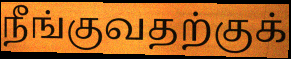
நீங்குவதற்குக்